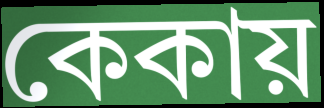
কেকায়